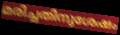
മരിച്ചതിനുശേഷം